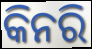
କିନରି